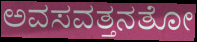
ಅವಸವತ್ತನತೋ